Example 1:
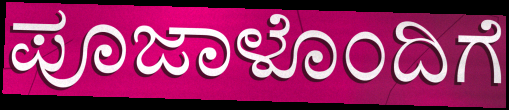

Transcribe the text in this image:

ಪೂಜಾಳೊಂದಿಗೆ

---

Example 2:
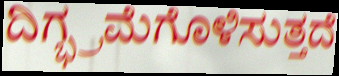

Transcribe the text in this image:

ದಿಗ್ಭ್ರಮೆಗೊಳಿಸುತ್ತದೆ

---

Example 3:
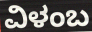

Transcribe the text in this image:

ವಿಳಂಬ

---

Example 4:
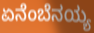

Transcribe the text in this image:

ಏನೆಂಬೆನಯ್ಯ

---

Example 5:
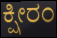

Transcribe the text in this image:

ಕ್ಷೀರಂ